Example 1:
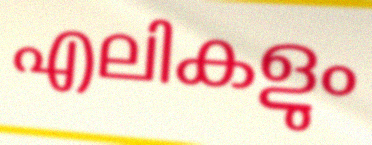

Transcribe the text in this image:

എലികളും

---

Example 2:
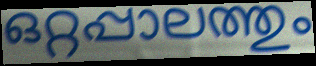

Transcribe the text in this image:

ഒറ്റപ്പാലത്തും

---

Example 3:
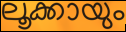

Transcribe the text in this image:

ലൂക്കായും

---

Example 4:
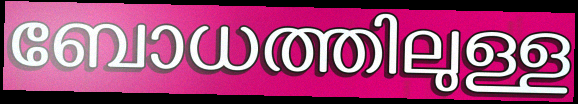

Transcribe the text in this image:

ബോധത്തിലുള്ള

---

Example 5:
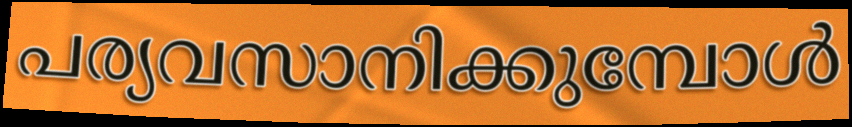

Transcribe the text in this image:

പര്യവസാനിക്കുമ്പോൾ